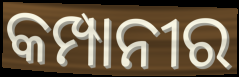
କମ୍ପାନୀର